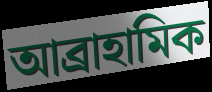
আব্ৰাহামিক